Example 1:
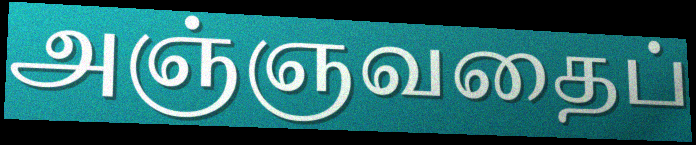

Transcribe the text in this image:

அஞ்ஞவதைப்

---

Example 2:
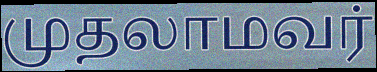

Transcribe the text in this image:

முதலாமவர்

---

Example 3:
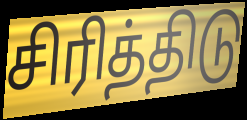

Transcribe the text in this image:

சிரித்திடு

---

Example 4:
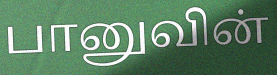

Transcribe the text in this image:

பானுவின்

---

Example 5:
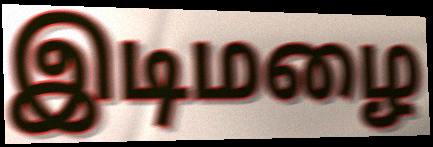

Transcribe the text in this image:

இடிமழை